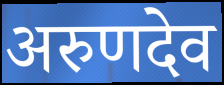
अरुणदेव